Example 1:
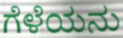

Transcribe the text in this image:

ಗೆಳೆಯನು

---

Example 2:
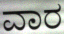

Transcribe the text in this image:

ವಾರ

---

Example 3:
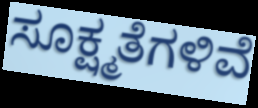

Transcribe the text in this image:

ಸೂಕ್ಷ್ಮತೆಗಳಿವೆ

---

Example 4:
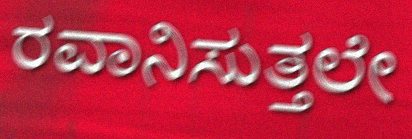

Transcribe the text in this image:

ರವಾನಿಸುತ್ತಲೇ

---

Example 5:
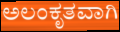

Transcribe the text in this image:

ಅಲಂಕೃತವಾಗಿ